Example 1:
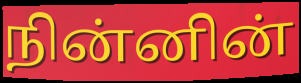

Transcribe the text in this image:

நின்னின்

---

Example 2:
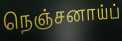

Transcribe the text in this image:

நெஞ்சனாய்ப்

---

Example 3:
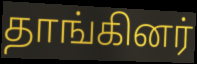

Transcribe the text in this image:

தாங்கினர்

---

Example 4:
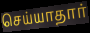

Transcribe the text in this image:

செய்யாதார்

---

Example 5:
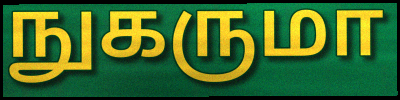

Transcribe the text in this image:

நுகருமா